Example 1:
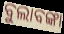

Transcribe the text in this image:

ବୁଲାବଙ୍କା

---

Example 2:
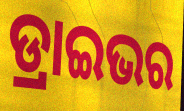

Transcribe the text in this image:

ଡ୍ରାଇଭର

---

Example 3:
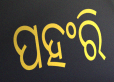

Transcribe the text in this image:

ପହଂରି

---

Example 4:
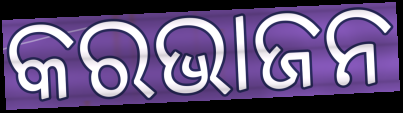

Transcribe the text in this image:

କରଭାଜନ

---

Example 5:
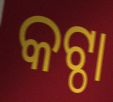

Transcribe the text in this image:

କଟ୍ଠା